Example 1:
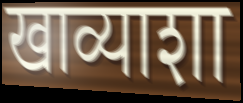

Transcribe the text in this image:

खाव्याशा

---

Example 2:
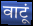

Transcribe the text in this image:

वाटूं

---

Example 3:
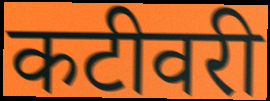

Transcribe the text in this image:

कटीवरी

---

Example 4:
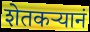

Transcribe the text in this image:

शेतकऱ्यानं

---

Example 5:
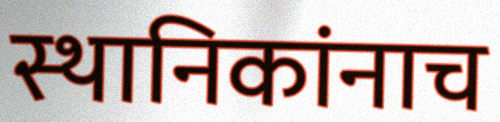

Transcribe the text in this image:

स्थानिकांनाच